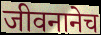
जीवनानेच